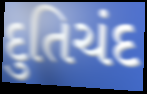
દુતિચંદ